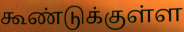
கூண்டுக்குள்ள